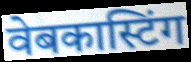
वेबकास्टिंग